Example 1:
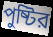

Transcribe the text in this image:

পুষ্টির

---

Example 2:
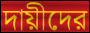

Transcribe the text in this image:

দায়ীদের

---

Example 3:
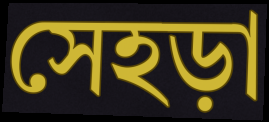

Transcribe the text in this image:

সেহড়া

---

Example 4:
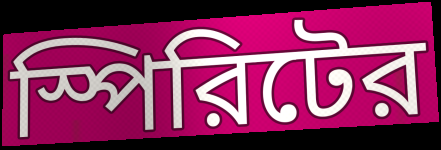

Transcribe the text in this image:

স্পিরিটের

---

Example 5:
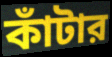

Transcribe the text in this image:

কাঁটার